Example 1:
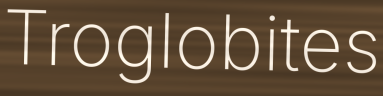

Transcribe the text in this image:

Troglobites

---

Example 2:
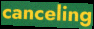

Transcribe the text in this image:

canceling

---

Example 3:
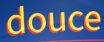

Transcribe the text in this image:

douce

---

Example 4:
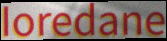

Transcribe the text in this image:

Ioredane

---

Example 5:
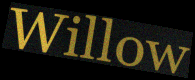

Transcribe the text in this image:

Willow